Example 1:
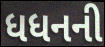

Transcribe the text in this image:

ધધનની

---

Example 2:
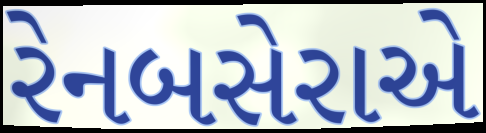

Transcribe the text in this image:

રેનબસેરાએ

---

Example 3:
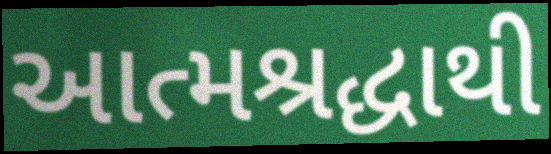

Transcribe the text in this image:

આત્મશ્રદ્ધાથી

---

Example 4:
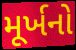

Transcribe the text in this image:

મૂર્ખનો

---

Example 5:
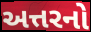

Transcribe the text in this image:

અત્તરનો